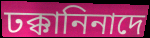
ঢক্কানিনাদে